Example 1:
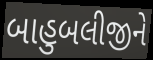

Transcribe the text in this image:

બાહુબલીજીને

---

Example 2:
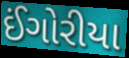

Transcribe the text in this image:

ઈંગોરીયા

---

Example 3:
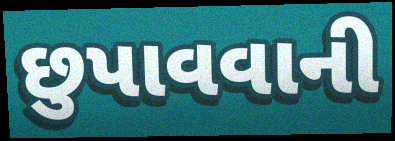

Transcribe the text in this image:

છુપાવવાની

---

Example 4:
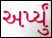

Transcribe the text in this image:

અર્પ્યું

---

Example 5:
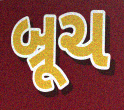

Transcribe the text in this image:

બ્રૂચ